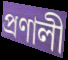
প্ৰণালী